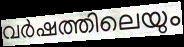
വർഷത്തിലെയും